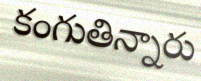
కంగుతిన్నారు